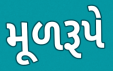
મૂળરૂપે